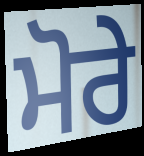
ਮੋਰੇ